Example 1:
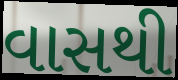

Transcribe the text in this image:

વાસથી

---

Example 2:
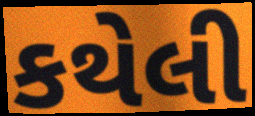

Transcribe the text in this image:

કથેલી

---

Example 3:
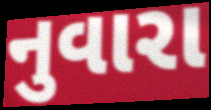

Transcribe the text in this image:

નુવારા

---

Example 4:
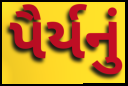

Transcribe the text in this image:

પૈર્યનું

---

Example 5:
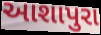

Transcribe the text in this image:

આશાપુરા